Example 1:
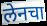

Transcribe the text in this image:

लेनचा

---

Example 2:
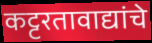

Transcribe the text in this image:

कट्टरतावाद्यांचे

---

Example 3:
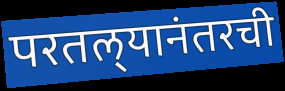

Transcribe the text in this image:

परतल्यानंतरची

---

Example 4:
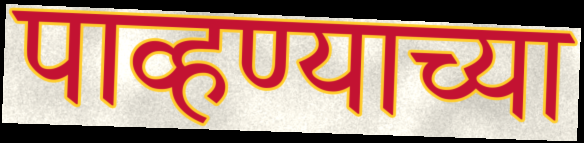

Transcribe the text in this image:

पाव्हण्याच्या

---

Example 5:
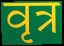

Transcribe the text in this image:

वृत्र